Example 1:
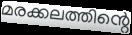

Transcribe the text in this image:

മരക്കലത്തിന്റെ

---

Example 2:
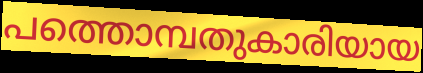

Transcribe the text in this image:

പത്തൊമ്പതുകാരിയായ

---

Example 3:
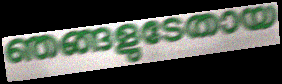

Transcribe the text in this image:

ഞങ്ങളുടേതായ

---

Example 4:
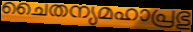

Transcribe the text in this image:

ചൈതന്യമഹാപ്രഭു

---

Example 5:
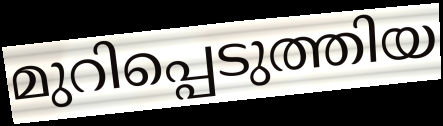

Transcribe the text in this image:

മുറിപ്പെടുത്തിയ